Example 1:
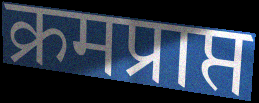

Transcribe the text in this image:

क्रमप्राप्त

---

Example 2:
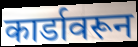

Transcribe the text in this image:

कार्डावरून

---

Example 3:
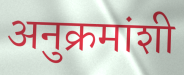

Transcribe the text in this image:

अनुक्रमांशी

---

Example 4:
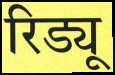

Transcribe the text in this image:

रिड्यू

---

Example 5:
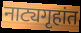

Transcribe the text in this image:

नाट्यगृहांत